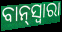
ବାନ୍‌ସ୍ୱାରା